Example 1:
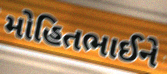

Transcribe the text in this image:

મોહિતભાઈને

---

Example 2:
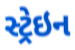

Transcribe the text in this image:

સ્ટ્રેઇન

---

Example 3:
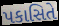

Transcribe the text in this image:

પકાસિતે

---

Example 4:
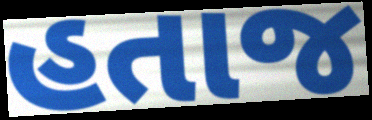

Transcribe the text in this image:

હતાજ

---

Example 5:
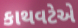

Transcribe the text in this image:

કાથવટેએ